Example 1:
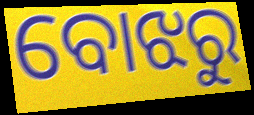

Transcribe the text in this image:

ବୋଝରୁ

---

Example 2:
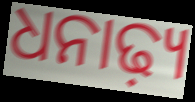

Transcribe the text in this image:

ଧନାଢ଼୍ୟ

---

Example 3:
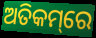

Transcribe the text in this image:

ଅତିକମ୍‌ରେ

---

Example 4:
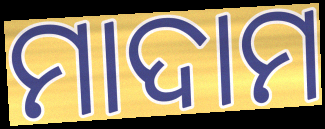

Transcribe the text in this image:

ମାଦାମ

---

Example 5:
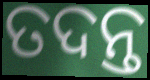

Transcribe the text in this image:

ତଦନ୍ତ